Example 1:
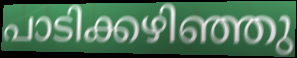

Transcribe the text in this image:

പാടിക്കഴിഞ്ഞു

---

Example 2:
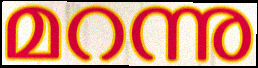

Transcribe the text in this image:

മറന്നു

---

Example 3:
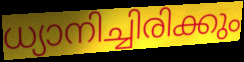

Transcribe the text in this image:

ധ്യാനിച്ചിരിക്കും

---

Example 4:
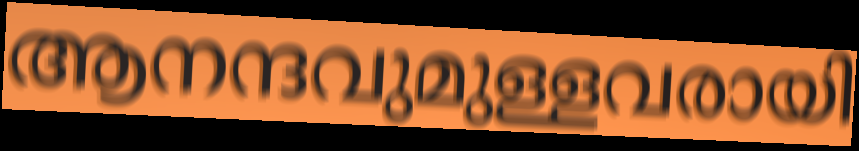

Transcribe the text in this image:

ആനന്ദവുമുള്ളവരായി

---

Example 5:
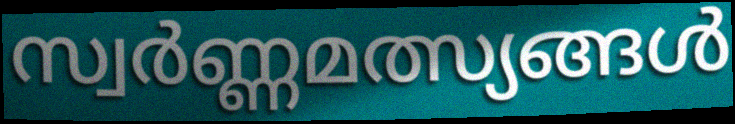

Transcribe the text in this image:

സ്വർണ്ണമത്സ്യങ്ങൾ